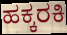
ಹಕ್ಕರಕಿ